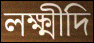
লক্ষ্মীদি